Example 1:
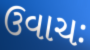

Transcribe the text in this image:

ઉવાચઃ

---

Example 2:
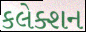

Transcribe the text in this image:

કલેક્શન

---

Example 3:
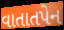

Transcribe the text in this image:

વાતાતપેન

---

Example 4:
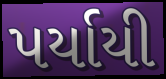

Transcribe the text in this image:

પર્યાયી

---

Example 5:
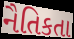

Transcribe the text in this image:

નૈતિકતા